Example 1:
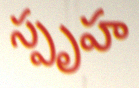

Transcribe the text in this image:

స్పృహ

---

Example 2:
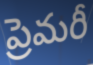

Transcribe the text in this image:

ప్రెమరీ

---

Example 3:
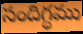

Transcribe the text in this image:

సందిగ్ధము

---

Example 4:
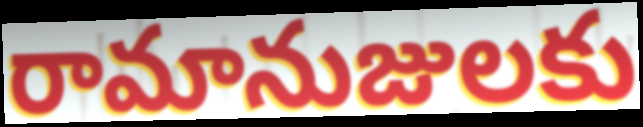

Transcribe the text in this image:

రామానుజులకు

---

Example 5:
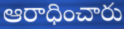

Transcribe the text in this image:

ఆరాధించారు